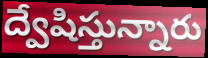
ద్వేషిస్తున్నారు